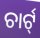
ଚାର୍ଟ୍